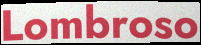
Lombroso